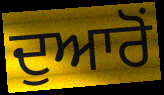
ਦੁਆਰੋਂ